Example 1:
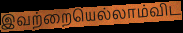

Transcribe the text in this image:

இவற்றையெல்லாம்விட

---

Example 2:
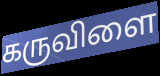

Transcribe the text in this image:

கருவிளை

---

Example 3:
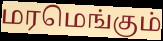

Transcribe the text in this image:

மரமெங்கும்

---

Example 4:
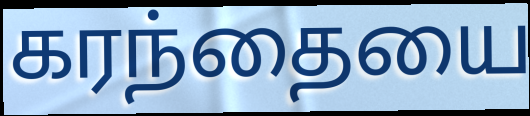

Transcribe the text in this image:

கரந்தையை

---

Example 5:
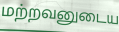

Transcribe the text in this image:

மற்றவனுடைய